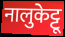
नालुकेट्टू